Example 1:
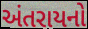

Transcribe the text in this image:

અંતરાયનો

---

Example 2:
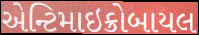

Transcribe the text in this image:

એન્ટિમાઇક્રોબાયલ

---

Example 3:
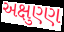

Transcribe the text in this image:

અક્ષુણ્ણ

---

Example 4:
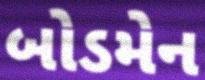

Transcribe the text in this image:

બોડમેન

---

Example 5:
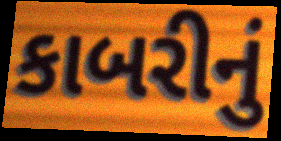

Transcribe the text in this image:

કાબરીનું